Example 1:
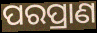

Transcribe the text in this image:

ପରପ୍ରାଣ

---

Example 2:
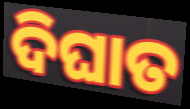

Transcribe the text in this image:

ଦିଘାତ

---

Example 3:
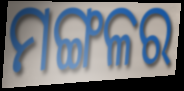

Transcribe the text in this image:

ମଙ୍ଗଳର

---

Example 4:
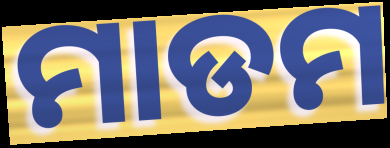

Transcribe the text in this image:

ମାଡମ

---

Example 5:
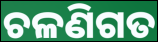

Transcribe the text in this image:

ଚଳଣିଗତ